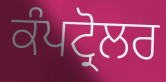
ਕੰਪਟ੍ਰੋਲਰ